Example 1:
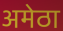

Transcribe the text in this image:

अमेठा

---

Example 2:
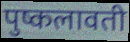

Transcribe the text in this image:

पुष्कलावती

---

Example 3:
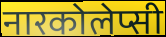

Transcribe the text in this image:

नारकोलेप्सी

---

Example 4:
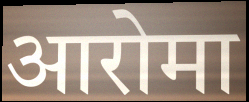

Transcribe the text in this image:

आरोमा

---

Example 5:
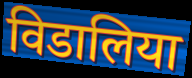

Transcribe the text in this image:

विडालिया